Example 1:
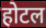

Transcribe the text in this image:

होटल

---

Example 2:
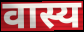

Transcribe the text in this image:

वास्य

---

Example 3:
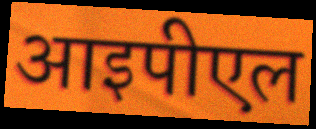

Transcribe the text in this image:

आइपीएल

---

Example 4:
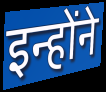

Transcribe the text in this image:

इन्होंने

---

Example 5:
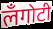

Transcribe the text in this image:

लँगोटी